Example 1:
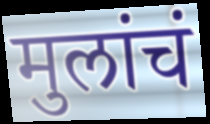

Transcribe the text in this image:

मुलांचं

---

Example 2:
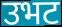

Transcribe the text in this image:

उभट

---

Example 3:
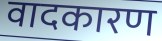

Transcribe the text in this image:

वादकारण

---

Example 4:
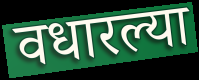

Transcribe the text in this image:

वधारल्या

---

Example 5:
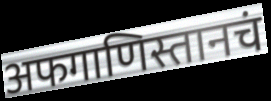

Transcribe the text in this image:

अफगाणिस्तानचं